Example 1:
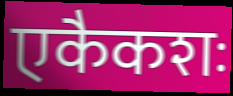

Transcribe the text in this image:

एकैकशः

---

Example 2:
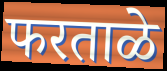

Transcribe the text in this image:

फरताळे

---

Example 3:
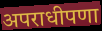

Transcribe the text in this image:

अपराधीपणा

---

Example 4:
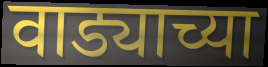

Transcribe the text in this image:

वाड्याच्या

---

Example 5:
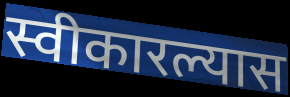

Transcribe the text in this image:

स्वीकारल्यास